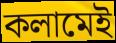
কলামেই